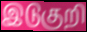
இடுகுறி